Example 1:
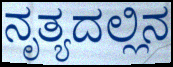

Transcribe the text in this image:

ನೃತ್ಯದಲ್ಲಿನ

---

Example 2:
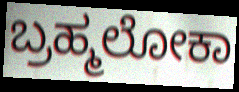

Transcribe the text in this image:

ಬ್ರಹ್ಮಲೋಕಾ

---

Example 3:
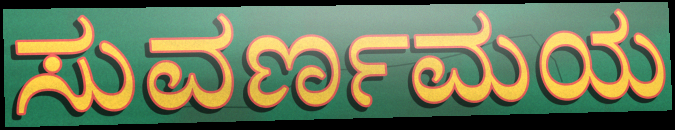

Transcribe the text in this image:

ಸುವರ್ಣಮಯ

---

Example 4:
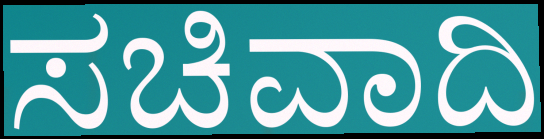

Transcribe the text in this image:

ಸಚಿವಾದಿ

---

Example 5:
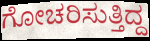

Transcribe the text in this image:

ಗೋಚರಿಸುತ್ತಿದ್ದ